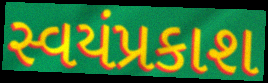
સ્વયંપ્રકાશ